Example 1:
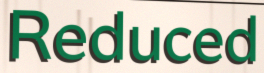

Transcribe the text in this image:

Reduced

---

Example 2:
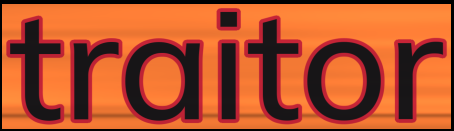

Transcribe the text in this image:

traitor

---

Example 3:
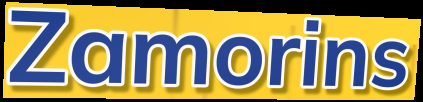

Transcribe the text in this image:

Zamorins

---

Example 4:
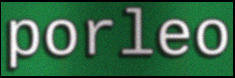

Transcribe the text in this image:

porleo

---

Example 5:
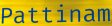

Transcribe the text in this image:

Pattinam